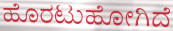
ಹೊರಟುಹೋಗಿದೆ